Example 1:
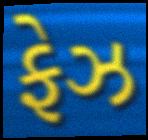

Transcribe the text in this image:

ફેઝ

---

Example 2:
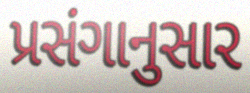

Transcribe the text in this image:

પ્રસંગાનુસાર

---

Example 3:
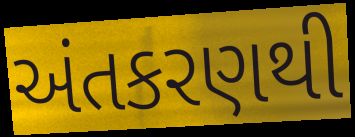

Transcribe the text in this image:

અંતકરણથી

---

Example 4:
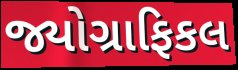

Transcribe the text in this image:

જ્યોગ્રાફિકલ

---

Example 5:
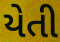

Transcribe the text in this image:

યેતી